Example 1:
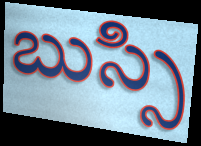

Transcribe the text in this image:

బుస్సి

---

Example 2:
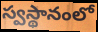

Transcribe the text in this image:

స్వస్థానంలో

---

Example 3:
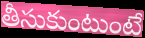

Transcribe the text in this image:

తీసుకుంటుంటే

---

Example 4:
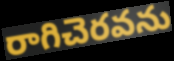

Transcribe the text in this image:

రాగిచెరవను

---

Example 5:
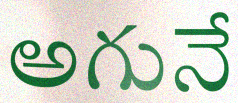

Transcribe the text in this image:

అగునే